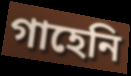
গাহেনি